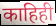
काहिही